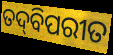
ତଦ୍‍ବିପରୀତ